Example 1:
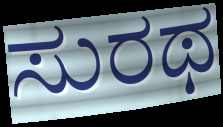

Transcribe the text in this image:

ಸುರಥ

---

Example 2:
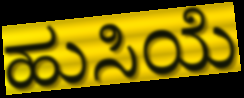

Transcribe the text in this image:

ಹುಸಿಯೆ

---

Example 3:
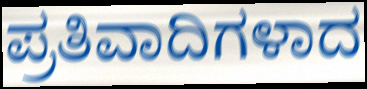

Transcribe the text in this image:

ಪ್ರತಿವಾದಿಗಳಾದ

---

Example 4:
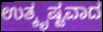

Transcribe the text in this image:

ಉತ್ಕೃಷ್ಟವಾದ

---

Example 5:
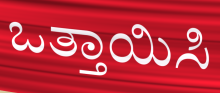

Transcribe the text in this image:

ಒತ್ತಾಯಿಸಿ